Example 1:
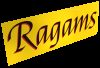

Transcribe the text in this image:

Ragams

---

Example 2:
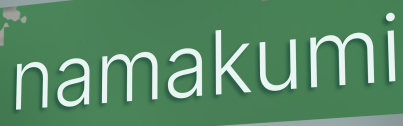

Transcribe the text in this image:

namakumi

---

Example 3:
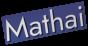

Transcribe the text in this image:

Mathai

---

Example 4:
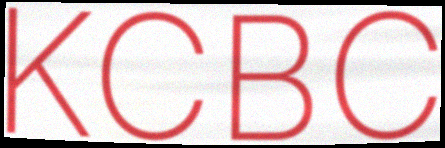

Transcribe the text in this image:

KCBC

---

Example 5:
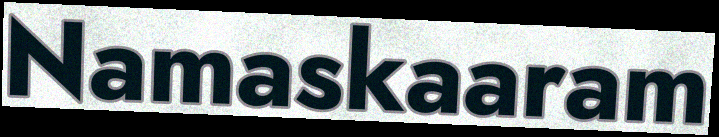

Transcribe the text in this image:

Namaskaaram